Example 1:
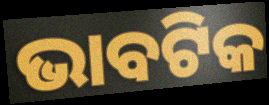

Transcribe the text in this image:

ଭାବଟିକ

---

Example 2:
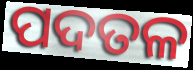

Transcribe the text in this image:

ପଦତଳ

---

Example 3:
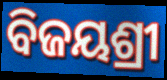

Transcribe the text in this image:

ବିଜୟଶ୍ରୀ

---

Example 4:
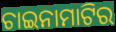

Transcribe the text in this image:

ଚାଇନାମାଟିର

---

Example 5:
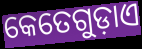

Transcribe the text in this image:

କେତେଗୁଡ଼ାଏ